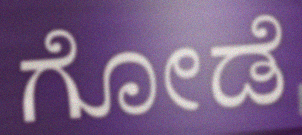
ಗೋಡೆ